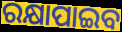
ରକ୍ଷାପାଇବ